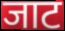
जाट